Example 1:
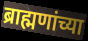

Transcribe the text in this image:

ब्राह्मणांच्या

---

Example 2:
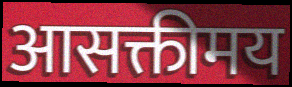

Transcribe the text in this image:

आसक्तीमय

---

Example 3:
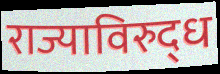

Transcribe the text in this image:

राज्याविरुद्ध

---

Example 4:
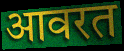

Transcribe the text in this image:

आवरत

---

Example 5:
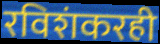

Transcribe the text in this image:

रविशंकरही